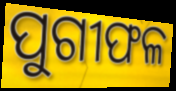
ପୁଗୀଫଳ